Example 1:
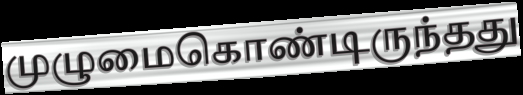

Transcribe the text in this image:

முழுமைகொண்டிருந்தது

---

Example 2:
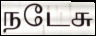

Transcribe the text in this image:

நடேசு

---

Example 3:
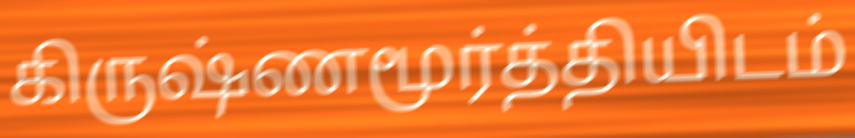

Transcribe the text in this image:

கிருஷ்ணமூர்த்தியிடம்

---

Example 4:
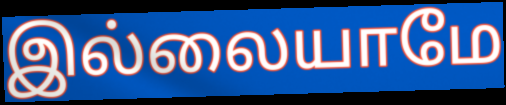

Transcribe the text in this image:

இல்லையாமே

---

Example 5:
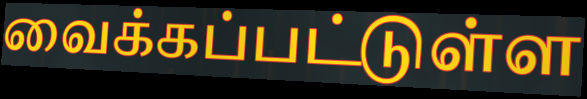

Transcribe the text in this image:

வைக்கப்பட்டுள்ள